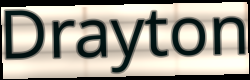
Drayton